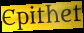
Epithet